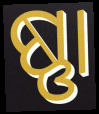
ଷ୍ଣା